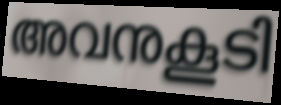
അവനുകൂടി